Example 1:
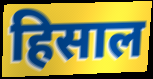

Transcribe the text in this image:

हिसाल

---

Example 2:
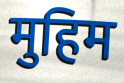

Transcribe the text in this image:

मुहिम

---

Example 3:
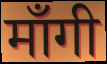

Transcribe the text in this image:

माँगी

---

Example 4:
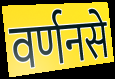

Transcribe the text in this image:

वर्णनसे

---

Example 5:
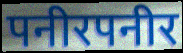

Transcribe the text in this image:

पनीरपनीर